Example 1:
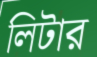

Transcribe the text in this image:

লিটার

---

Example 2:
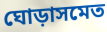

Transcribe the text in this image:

ঘোড়াসমেত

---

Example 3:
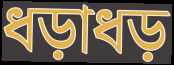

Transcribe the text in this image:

ধড়াধড়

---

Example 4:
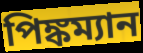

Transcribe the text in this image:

পিঙ্কম্যান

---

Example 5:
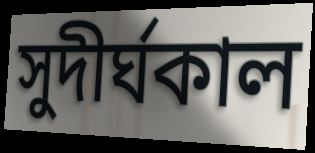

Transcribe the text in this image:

সুদীর্ঘকাল